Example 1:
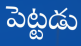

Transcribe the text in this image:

పెట్టడు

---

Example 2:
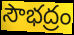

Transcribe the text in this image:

సౌభద్రం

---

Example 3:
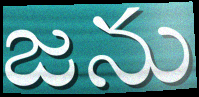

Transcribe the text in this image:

జను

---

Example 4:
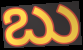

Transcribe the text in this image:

బు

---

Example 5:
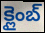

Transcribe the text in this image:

క్లైంబ్